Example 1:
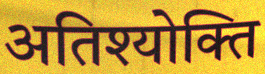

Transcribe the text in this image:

अतिश्योक्ति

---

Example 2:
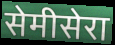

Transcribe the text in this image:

सेमीसेरा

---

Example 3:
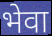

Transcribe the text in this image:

भेवा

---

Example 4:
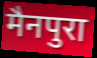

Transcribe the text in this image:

मैनपुरा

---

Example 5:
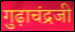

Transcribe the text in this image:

गुढ़ाचंद्रजी